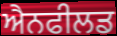
ਐਨਫੀਲਡ